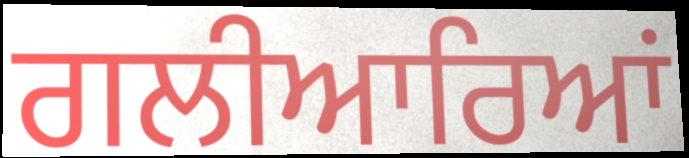
ਗਲੀਆਰਿਆਂ